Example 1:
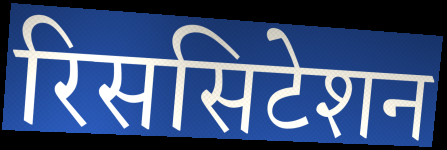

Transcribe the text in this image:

रिससिटेशन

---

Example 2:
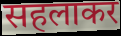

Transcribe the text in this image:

सहलाकर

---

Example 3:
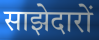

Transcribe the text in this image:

साझेदारों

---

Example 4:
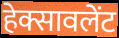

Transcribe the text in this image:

हेक्सावलेंट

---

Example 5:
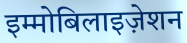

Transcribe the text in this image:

इम्मोबिलाइज़ेशन